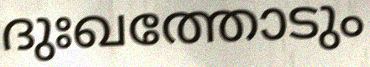
ദുഃഖത്തോടും